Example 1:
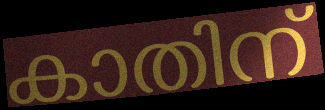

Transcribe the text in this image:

കാതിന്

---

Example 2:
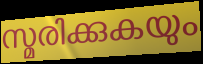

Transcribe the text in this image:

സ്മരിക്കുകയും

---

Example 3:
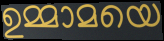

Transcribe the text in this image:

ഉമ്മാമയെ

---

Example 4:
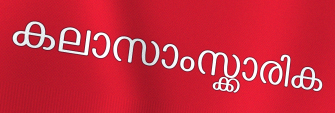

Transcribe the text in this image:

കലാസാംസ്ക്കാരിക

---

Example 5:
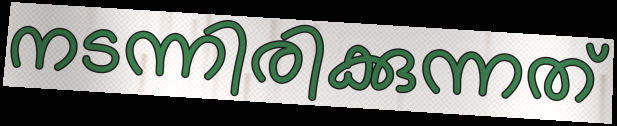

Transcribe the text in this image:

നടന്നിരിക്കുന്നത്